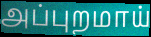
அப்புறமாய்